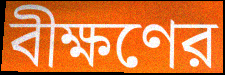
বীক্ষণের